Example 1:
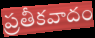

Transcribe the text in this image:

ప్రతీకవాదం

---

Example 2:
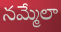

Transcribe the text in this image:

నమ్మేలా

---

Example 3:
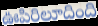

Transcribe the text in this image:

ఊపిరిలూదింది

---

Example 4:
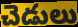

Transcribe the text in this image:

చెడులు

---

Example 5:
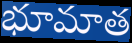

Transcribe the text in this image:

భూమాత